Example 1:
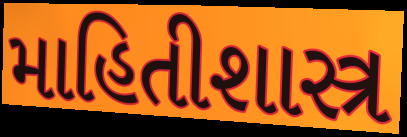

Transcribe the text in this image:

માહિતીશાસ્ત્ર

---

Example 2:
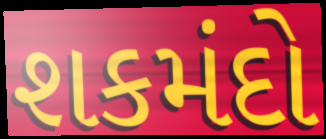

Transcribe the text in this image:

શકમંદો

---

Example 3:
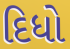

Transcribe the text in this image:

દિધો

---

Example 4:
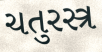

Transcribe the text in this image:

ચતુરસ્ત્ર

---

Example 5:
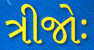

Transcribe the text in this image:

ત્રીજોઃ